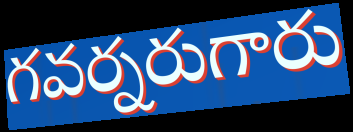
గవర్నరుగారు